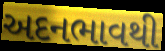
અદનભાવથી